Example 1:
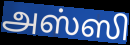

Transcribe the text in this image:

அஸ்ஸி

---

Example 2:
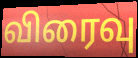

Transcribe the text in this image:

விரைவு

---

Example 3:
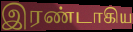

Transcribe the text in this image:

இரண்டாகிய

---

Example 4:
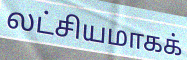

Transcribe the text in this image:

லட்சியமாகக்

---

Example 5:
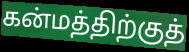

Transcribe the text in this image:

கன்மத்திற்குத்